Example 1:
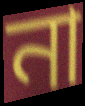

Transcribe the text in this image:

না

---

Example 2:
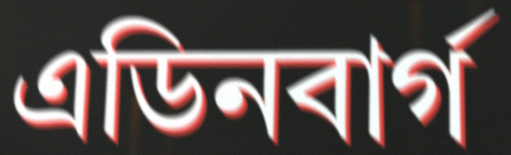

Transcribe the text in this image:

এডিনবাৰ্গ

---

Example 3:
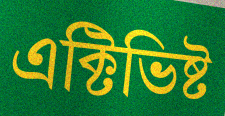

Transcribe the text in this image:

এক্টিভিষ্ট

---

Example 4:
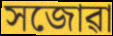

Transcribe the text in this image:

সজোৱা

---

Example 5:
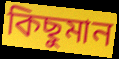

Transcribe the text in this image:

কিছুমান